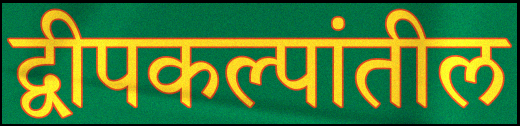
द्वीपकल्पांतील